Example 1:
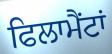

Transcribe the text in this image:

ਫਿਲਾਮੈਂਟਾਂ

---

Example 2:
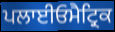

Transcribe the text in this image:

ਪਲਾਈਓਮੈਟ੍ਰਿਕ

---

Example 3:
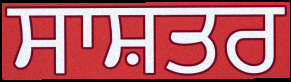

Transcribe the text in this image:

ਸਾਸ਼ਤਰ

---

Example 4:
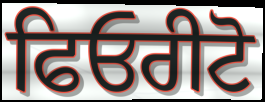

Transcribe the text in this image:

ਫਿਓਰੀਟੋ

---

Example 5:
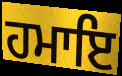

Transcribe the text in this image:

ਹਮਾਇ